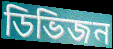
ডিভিজন